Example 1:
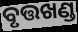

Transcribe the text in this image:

ବୃତ୍ତଖଣ୍ଡ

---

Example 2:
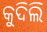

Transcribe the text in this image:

କୁଦିଲି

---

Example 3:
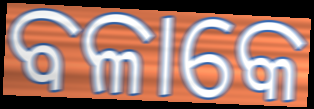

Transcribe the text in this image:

ବଳାକେ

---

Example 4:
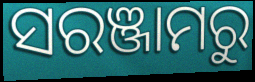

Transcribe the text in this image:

ସରଞ୍ଜାମରୁ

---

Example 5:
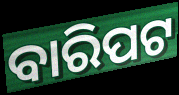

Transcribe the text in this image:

ବାରିପଟ